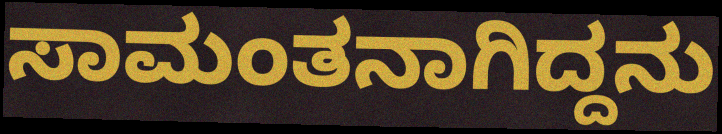
ಸಾಮಂತನಾಗಿದ್ದನು